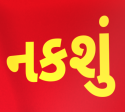
નકશું